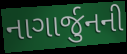
નાગાર્જુનની